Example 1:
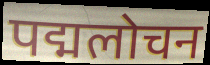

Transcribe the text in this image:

पद्मलोचन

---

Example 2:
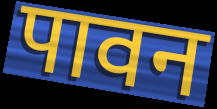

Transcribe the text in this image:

पावन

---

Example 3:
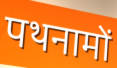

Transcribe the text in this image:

पथनामों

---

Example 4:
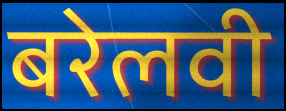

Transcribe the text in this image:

बरेलवी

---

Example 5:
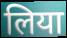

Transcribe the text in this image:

लिया